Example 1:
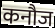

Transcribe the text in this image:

कनौज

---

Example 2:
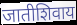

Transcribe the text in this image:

जातीशिवाय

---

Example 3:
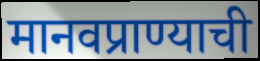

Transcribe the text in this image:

मानवप्राण्याची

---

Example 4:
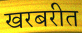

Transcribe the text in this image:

खरबरीत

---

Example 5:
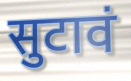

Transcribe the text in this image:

सुटावं